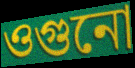
ওগুনো